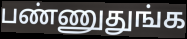
பண்ணுதுங்க